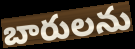
బారులను